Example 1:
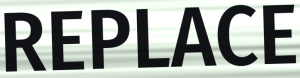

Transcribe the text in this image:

REPLACE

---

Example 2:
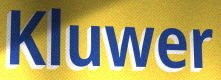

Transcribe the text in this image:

Kluwer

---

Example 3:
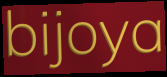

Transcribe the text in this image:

bijoya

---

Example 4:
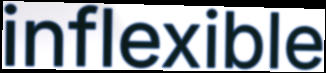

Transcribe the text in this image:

inflexible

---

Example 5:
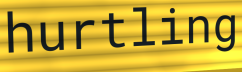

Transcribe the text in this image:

hurtling